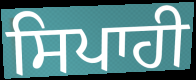
ਸਿਪਾਹੀ